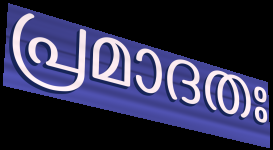
പ്രമാദതഃ